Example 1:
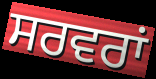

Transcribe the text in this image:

ਸਰਵਰਾਂ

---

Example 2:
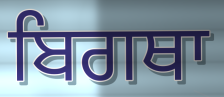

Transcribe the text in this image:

ਬਿਗਥਾ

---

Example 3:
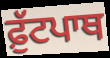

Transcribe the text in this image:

ਫ਼ੁੱਟਪਾਥ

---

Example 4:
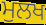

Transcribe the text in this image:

ਮੁਲਖ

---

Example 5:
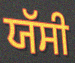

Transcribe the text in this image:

ਯੱਸੀ